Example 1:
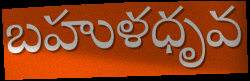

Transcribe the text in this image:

బహుళధృవ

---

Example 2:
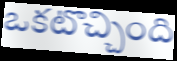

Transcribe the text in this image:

ఒకటొచ్చింది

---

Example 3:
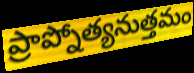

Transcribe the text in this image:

ప్రాప్నోత్యనుత్తమం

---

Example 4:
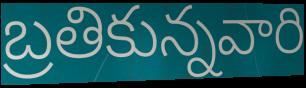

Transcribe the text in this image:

బ్రతికున్నవారి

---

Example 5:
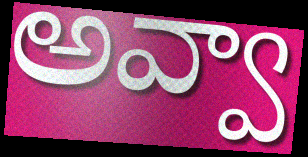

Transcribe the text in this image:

అవ్వా